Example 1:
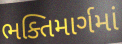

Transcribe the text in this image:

ભક્તિમાર્ગમાં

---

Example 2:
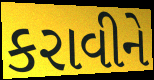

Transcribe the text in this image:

કરાવીને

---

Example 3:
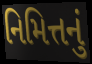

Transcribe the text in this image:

નિમિત્તનું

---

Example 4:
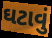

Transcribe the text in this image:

ઘટાવું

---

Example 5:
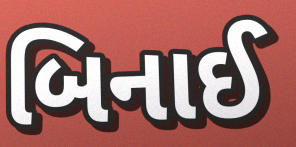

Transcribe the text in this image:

બિનાઈ